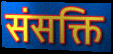
संसक्ति